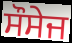
ਸੌਸੇਜ